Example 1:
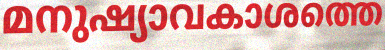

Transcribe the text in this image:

മനുഷ്യാവകാശത്തെ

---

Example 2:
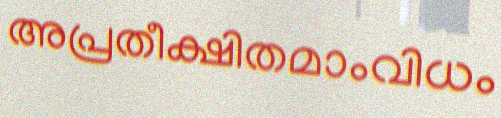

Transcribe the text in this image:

അപ്രതീക്ഷിതമാംവിധം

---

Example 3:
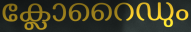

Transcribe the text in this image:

ക്ലോറൈഡും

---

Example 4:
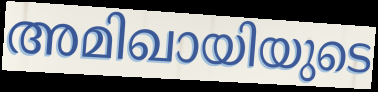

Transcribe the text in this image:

അമിഖായിയുടെ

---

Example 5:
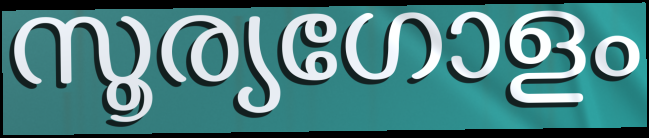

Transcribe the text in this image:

സൂര്യഗോളം